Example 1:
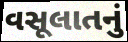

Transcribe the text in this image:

વસૂલાતનું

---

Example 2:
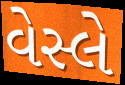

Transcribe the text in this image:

વેસ્લે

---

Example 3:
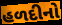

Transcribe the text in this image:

હળદીનો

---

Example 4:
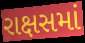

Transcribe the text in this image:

રાક્ષસમાં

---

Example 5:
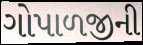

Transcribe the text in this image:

ગોપાળજીની